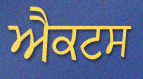
ਐਕਟਸ